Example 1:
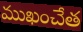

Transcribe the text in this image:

ముఖంచేత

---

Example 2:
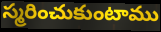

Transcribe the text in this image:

స్మరించుకుంటాము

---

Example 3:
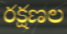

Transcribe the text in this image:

రక్షణల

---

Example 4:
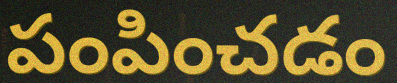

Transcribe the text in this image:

పంపించడం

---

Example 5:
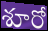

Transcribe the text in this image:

శూరో